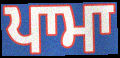
ਪਾਮਾ